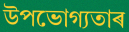
উপভোগ্যতাৰ